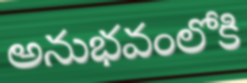
అనుభవంలోకి